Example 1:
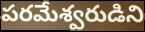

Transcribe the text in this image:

పరమేశ్వరుడిని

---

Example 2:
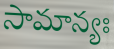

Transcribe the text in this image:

సామాన్యః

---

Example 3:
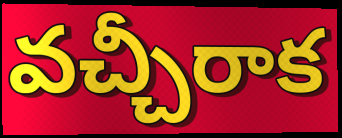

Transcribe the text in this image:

వచ్చీరాక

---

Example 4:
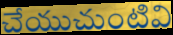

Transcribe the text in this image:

చేయుచుంటివి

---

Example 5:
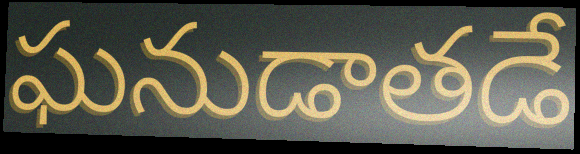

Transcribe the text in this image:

ఘనుడాతడే